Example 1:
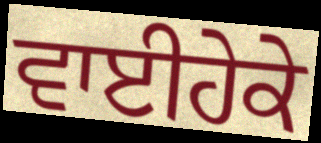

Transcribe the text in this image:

ਵਾਈਹੇਕੇ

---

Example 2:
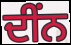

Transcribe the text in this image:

ਦੀਂਨ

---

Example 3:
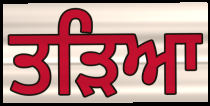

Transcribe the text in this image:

ਤੜਿਆ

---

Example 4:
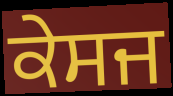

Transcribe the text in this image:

ਕੇਸਜ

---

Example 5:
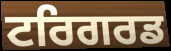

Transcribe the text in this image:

ਟਰਿਗਰਡ